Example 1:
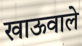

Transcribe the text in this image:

खाऊवाले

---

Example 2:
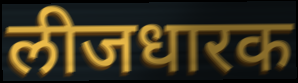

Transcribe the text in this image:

लीजधारक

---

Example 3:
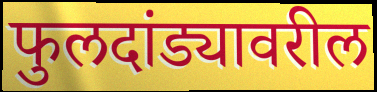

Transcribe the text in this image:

फुलदांड्यावरील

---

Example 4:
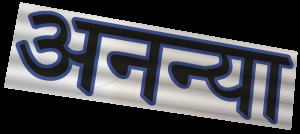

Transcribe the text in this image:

अनन्या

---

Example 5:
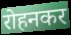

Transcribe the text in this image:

रोहनकर